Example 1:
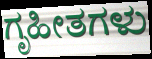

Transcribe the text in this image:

ಗೃಹೀತಗಳು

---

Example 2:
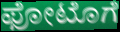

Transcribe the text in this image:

ಫೋಟೊಗೆ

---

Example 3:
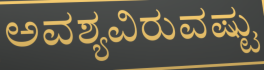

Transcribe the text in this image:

ಅವಶ್ಯವಿರುವಷ್ಟು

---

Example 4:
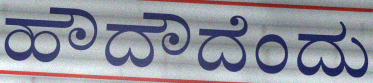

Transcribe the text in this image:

ಹೌದೌದೆಂದು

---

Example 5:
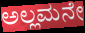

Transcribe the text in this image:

ಅಲ್ಲಮನೇ